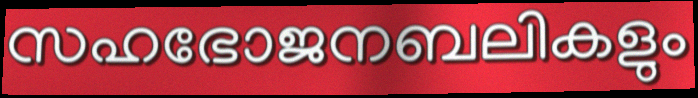
സഹഭോജനബലികളും